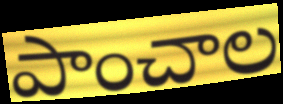
పాంచాల